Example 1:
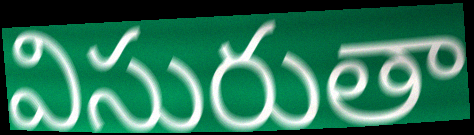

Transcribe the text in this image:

విసురుతా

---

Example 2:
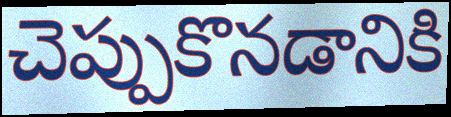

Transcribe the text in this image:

చెప్పుకొనడానికి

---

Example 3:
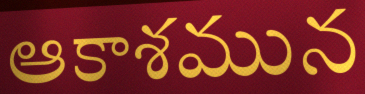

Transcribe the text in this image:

ఆకాశమున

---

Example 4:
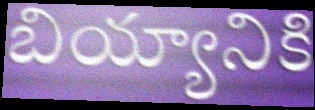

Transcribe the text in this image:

బియ్యానికి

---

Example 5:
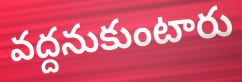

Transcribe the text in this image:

వద్దనుకుంటారు